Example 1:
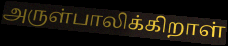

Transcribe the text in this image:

அருள்பாலிக்கிறாள்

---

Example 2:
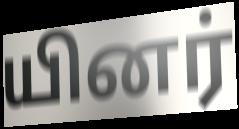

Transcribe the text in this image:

யினர்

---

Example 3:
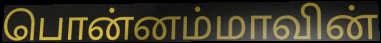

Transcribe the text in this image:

பொன்னம்மாவின்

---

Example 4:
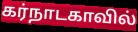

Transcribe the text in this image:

கர்நாடகாவில்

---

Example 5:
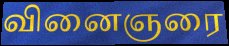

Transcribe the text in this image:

வினைஞரை